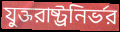
যুক্তরাষ্ট্রনির্ভর